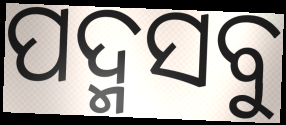
ପଦ୍ମସବୁ